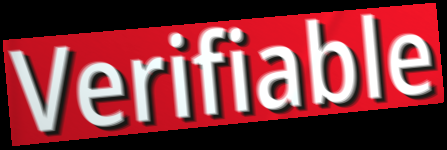
Verifiable